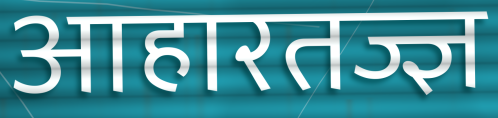
आहारतज्ज्ञ